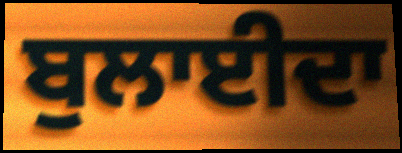
ਬੁਲਾਈਦਾ